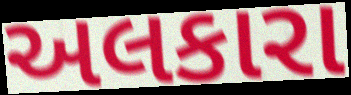
અલકારા